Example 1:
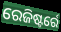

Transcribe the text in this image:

ରେଜିଷ୍ଟର୍ରେ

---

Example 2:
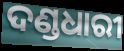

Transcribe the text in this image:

ଦଣ୍ଡଧାରୀ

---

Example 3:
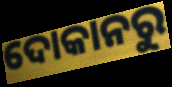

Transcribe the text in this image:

ଦୋକାନରୁ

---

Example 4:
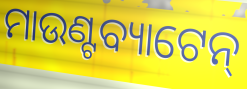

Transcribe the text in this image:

ମାଉଣ୍ଟବ୍ୟାଟେନ୍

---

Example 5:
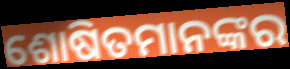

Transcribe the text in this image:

ଶୋଷିତମାନଙ୍କର